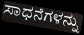
ಸಾಧನೆಗಳನ್ನು